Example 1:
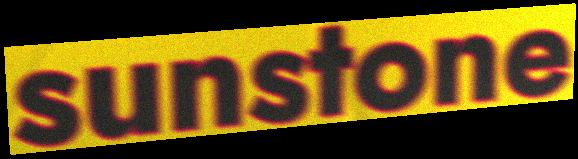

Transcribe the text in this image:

sunstone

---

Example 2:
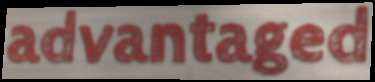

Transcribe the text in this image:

advantaged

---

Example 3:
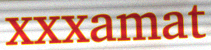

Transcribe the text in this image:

xxxamat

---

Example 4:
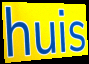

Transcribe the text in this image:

huis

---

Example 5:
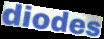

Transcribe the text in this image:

diodes